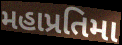
મહાપ્રતિમા